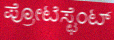
ಪ್ರೋಟೆಸ್ಟೆಂಟ್